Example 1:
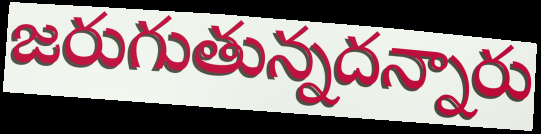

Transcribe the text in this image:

జరుగుతున్నదన్నారు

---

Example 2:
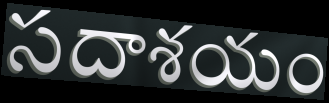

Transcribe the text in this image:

సదాశయం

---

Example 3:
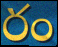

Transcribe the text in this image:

రం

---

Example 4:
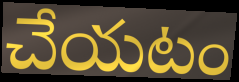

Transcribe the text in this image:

చేయటం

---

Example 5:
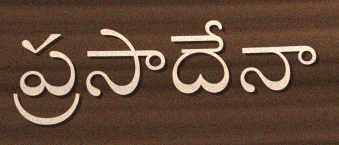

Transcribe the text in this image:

ప్రసాదేనా